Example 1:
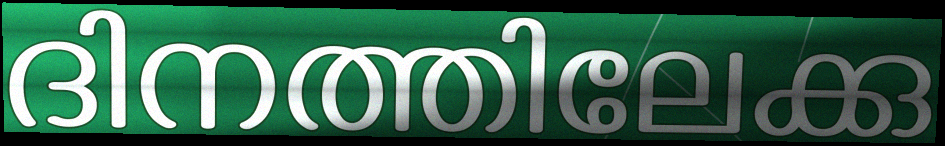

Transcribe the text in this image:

ദിനത്തിലേക്കു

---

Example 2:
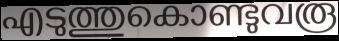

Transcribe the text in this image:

എടുത്തുകൊണ്ടുവരൂ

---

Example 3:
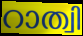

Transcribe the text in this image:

റാത്വി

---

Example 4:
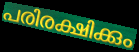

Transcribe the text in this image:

പരിരക്ഷിക്കും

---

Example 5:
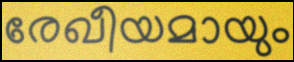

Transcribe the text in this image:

രേഖീയമായും